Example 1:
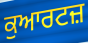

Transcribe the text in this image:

ਕੁਆਰਟਜ਼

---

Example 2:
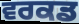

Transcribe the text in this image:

ਵਰਕਡ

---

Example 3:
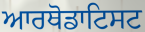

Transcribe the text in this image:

ਆਰਥੋਡਾਟਿਸਟ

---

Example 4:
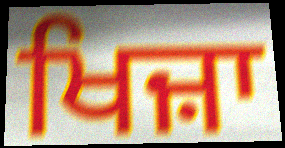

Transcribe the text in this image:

ਖਿਜ਼ਾ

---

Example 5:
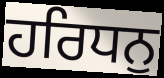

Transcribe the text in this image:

ਹਰਿਧਨੁ